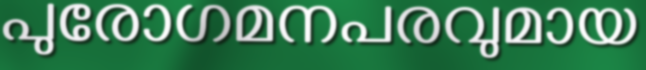
പുരോഗമനപരവുമായ